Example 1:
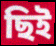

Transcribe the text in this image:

ছিই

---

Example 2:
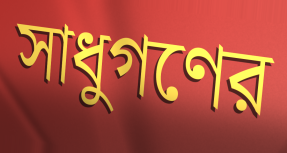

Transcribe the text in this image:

সাধুগণের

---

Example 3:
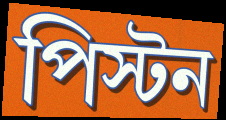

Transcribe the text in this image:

পিস্টন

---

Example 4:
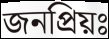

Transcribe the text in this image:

জনপ্রিয়ঃ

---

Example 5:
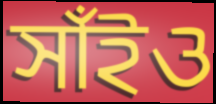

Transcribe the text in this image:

সাঁইও